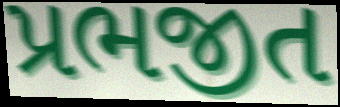
પ્રભજીત